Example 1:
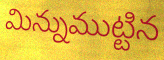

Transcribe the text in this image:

మిన్నుముట్టిన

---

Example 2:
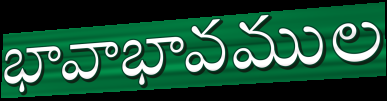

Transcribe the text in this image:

భావాభావముల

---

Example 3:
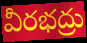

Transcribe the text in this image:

వీరభద్రు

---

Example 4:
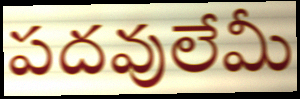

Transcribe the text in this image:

పదవులేమీ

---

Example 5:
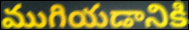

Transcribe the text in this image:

ముగియడానికి